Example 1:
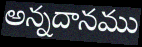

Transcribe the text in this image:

అన్నదానము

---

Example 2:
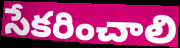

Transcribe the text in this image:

సేకరించాలి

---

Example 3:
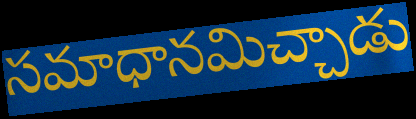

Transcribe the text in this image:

సమాధానమిచ్చాడు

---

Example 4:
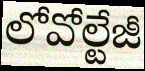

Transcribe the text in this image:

లోవోల్టేజీ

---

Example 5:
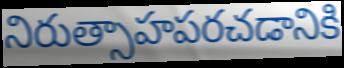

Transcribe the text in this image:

నిరుత్సాహపరచడానికి